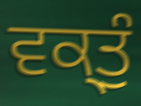
ਵਕ੍ਤੁੰ